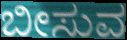
ಬೀಸುವ